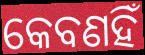
କେବଣହିଁ